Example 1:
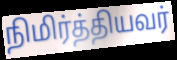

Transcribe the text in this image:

நிமிர்த்தியவர்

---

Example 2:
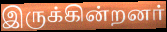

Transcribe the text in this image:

இருக்கின்றனர்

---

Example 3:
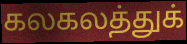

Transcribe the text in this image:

கலகலத்துக்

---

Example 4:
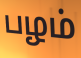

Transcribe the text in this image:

பழம்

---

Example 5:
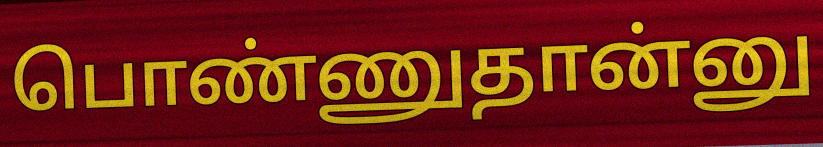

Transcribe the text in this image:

பொண்ணுதான்னு